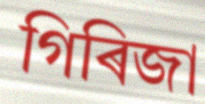
গিৰিজা